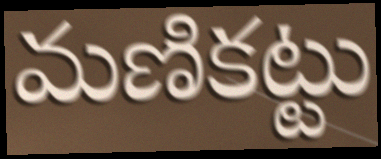
మణికట్టు